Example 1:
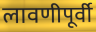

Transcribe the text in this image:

लावणीपूर्वी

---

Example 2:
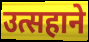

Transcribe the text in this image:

उत्सहाने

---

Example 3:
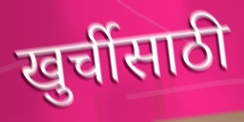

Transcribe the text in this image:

खुर्चीसाठी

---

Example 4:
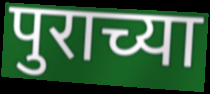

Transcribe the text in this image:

पुराच्या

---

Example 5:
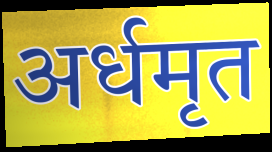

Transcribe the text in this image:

अर्धमृत